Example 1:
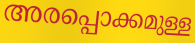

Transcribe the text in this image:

അരപ്പൊക്കമുള്ള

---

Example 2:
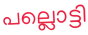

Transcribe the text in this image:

പല്ലൊട്ടി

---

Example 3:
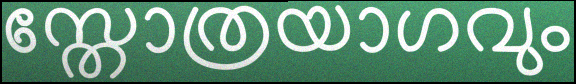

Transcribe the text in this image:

സ്തോത്രയാഗവും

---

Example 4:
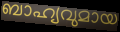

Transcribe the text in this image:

ബാഹ്യവുമായ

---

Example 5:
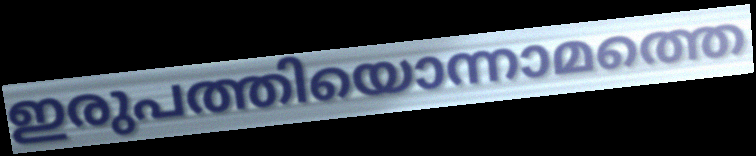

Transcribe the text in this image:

ഇരുപത്തിയൊന്നാമത്തെ